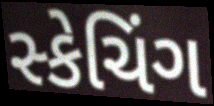
સ્કેચિંગ